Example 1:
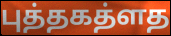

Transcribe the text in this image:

புத்தகத்ளத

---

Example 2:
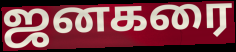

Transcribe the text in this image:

ஜனகரை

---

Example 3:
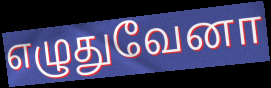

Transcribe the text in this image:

எழுதுவேனா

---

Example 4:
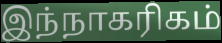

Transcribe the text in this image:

இந்நாகரிகம்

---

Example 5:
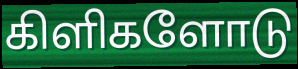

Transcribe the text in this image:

கிளிகளோடு